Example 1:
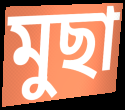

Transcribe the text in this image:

মুছা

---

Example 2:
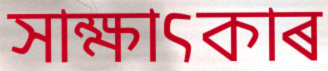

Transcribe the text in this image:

সাক্ষাৎকাৰ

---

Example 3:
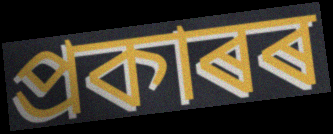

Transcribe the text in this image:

প্ৰকাৰৰ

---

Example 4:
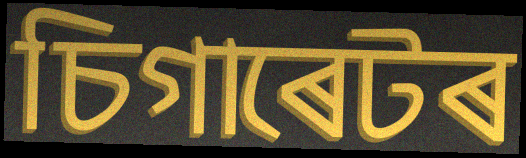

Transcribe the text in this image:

চিগাৰেটৰ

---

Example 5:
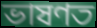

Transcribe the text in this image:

ভাষণত